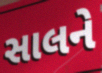
સાલને